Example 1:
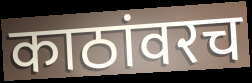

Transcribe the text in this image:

काठांवरच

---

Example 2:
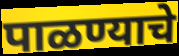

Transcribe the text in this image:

पाळण्याचे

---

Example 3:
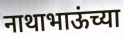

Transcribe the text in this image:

नाथाभाऊंच्या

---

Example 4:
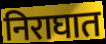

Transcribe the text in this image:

निराघात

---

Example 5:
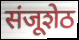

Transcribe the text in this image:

संजूशेठ